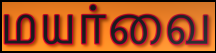
மயர்வை